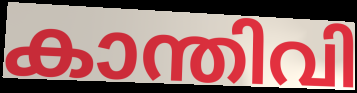
കാന്തിവി